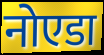
नोएडा